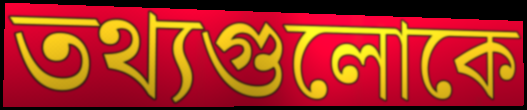
তথ্যগুলোকে